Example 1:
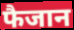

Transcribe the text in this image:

फैजान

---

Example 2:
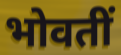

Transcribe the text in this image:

भोवतीं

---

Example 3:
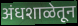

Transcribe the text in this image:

अंधशाळेतून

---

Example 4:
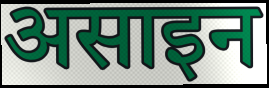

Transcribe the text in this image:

असाइन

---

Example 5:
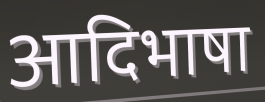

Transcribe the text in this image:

आदिभाषा